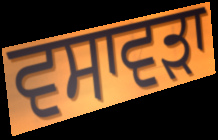
ਵਸਾਵੜਾ